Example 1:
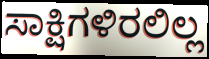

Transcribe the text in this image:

ಸಾಕ್ಷಿಗಳಿರಲಿಲ್ಲ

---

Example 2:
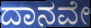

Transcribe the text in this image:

ದಾನವೇ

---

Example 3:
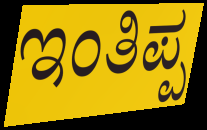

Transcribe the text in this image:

ಇಂತಿಪ್ಪ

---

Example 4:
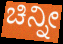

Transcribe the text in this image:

ಚಿನ್ನೀ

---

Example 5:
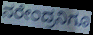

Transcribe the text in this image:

ನರೇಂದ್ರನಿಗೂ